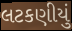
લટકણીયું